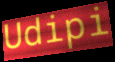
Udipi